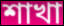
শাখা